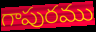
గాపురము